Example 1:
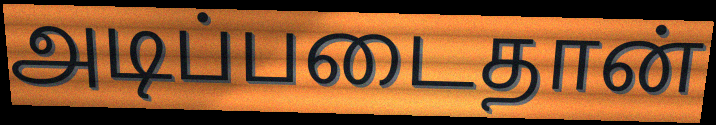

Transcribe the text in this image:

அடிப்படைதான்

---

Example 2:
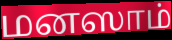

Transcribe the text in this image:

மனஸாம்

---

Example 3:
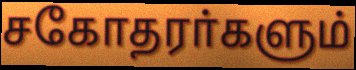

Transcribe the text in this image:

சகோதரர்களும்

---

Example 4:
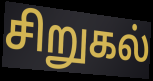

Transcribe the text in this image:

சிறுகல்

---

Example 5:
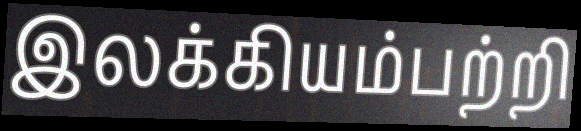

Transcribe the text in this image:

இலக்கியம்பற்றி